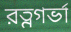
রত্নগর্ভা